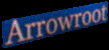
Arrowroot